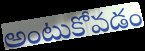
అంటుకోవడం